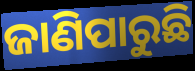
ଜାଣିପାରୁଛି